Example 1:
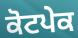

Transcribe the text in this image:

ਕੋਟਪੇਕ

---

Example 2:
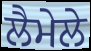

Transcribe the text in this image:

ਲੈਮੇਲੇ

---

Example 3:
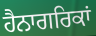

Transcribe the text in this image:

ਹੈਨਾਗਰਿਕਾਂ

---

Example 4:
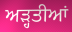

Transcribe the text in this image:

ਅੜ੍ਹਤੀਆਂ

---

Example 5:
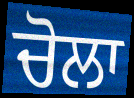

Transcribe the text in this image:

ਚੋਲਾ